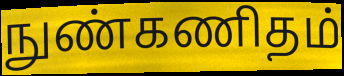
நுண்கணிதம்